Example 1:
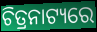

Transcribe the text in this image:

ଚିତ୍ରନାଟ୍ୟରେ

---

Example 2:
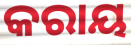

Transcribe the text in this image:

କରାୟ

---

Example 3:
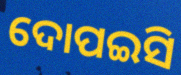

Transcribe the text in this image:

ଦୋପଇସି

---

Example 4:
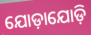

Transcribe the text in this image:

ଯୋଡ଼ାଯୋଡ଼ି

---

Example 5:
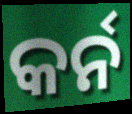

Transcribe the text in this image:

କର୍ନ